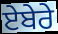
ਏਬੇਰੇ